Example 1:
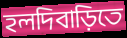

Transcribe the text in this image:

হলদিবাড়িতে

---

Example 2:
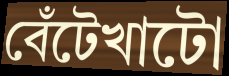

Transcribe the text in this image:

বেঁটেখাটো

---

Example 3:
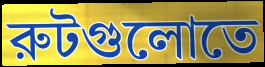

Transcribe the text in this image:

রুটগুলোতে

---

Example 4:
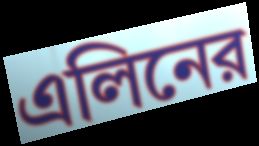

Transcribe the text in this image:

এলিনের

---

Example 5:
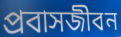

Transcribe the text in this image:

প্রবাসজীবন